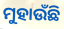
ମୁହାଉଁଛି